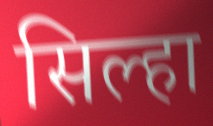
सिल्हा